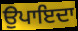
ਉਪਾਇਦਾ